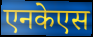
एनकेएस